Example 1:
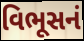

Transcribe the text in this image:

વિભૂસનં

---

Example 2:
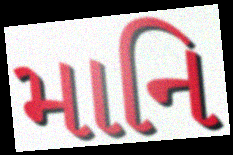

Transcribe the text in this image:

માનિ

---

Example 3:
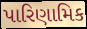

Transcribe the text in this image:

પારિણામિક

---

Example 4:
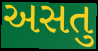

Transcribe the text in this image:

અસતુ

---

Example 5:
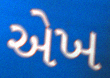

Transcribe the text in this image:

એખ